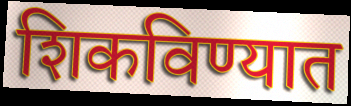
शिकविण्यात